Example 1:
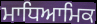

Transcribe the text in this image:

ਮਾਧਿਆਮਿਕ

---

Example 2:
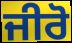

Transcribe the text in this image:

ਜੀਰੋ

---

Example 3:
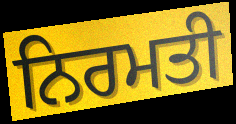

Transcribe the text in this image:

ਨਿਰਮਤੀ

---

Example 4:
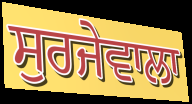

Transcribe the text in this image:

ਸੁਰਜੇਵਾਲਾ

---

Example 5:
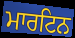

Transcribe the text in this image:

ਮਾਰਟਿਨ